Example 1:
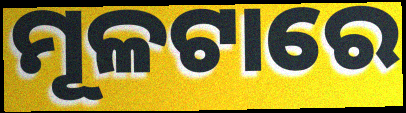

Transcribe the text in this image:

ମୂଳଟାରେ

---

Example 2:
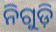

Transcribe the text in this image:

ନିଗୁଡ଼ି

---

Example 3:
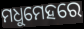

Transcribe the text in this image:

ମଧୁମେହରେ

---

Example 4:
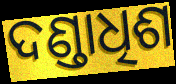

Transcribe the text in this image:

ଦଣ୍ଡାଧିଶ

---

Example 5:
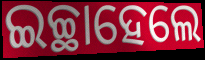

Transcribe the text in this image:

ଇଚ୍ଛାହେଲେ